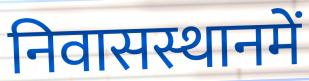
निवासस्थानमें